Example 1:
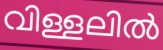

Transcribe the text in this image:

വിള്ളലിൽ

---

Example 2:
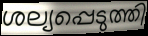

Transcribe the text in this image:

ശല്യപ്പെടുത്തി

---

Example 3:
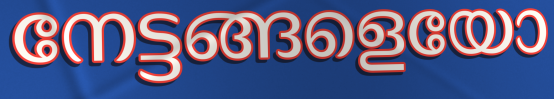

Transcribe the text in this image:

നേട്ടങ്ങളെയോ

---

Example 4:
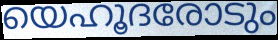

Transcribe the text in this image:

യെഹൂദരോടും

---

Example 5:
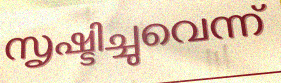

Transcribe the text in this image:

സൃഷ്ടിച്ചുവെന്ന്